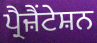
ਪ੍ਰੈਜ਼ੈਂਟੇਸ਼ਨ